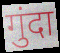
गुंदा